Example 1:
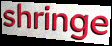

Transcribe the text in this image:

shringe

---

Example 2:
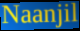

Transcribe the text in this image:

Naanjil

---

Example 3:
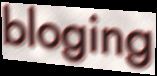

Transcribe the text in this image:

bloging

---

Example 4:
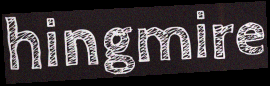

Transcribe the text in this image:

hingmire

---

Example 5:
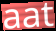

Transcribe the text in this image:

aat